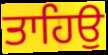
ਤਾਹਿਉ